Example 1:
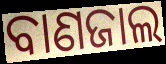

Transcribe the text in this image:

ବାଣଜାଲ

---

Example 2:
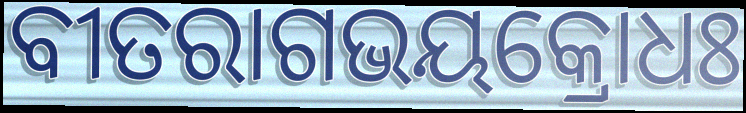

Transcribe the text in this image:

ବୀତରାଗଭୟକ୍ରୋଧଃ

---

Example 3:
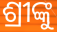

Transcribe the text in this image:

ଶ୍ରୀଙ୍କୁ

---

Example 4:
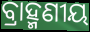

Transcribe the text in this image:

ବ୍ରାହ୍ମଣୀୟ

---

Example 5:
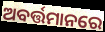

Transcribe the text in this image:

ଅବର୍ତ୍ତମାନରେ